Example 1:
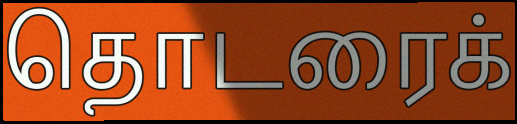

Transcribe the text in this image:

தொடரைக்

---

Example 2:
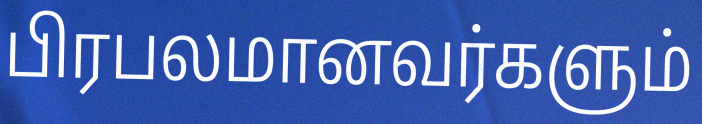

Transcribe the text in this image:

பிரபலமானவர்களும்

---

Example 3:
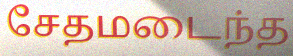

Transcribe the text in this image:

சேதமடைந்த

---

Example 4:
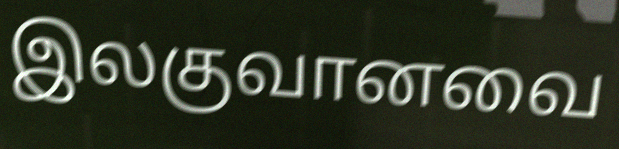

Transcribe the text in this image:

இலகுவானவை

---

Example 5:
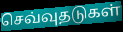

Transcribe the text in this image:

செவ்வுதடுகள்